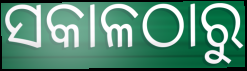
ସକାଳଠାରୁ